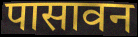
पासावन